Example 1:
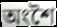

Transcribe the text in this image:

অংশৈ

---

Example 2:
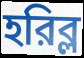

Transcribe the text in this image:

হরিব্ল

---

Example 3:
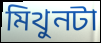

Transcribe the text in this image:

মিথুনটা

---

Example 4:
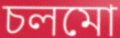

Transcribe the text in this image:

চলমো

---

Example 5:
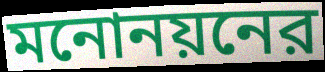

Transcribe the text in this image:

মনোনয়নের